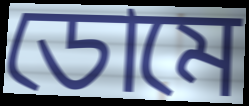
ডোমে